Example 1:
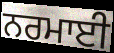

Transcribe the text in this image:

ਨਰਮਾਈ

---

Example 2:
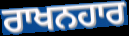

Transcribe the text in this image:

ਰਾਖਨਹਾਰ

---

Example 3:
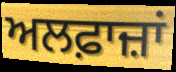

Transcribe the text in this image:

ਅਲਫ਼ਾਜ਼ਾਂ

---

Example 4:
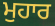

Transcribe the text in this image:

ਮੁਹਾਰ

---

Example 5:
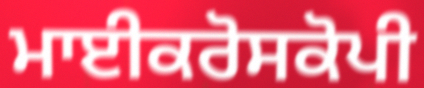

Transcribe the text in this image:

ਮਾਈਕਰੋਸਕੋਪੀ